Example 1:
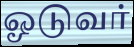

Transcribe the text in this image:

ஓடுவர்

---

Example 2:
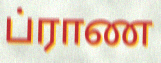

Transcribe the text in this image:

ப்ராண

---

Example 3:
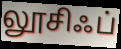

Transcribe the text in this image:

லூசிஃப்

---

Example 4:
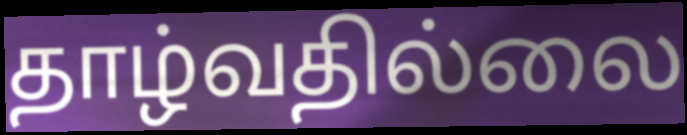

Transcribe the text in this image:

தாழ்வதில்லை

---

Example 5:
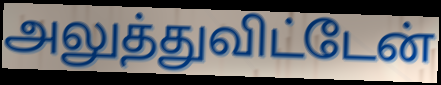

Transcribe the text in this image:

அலுத்துவிட்டேன்